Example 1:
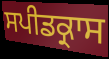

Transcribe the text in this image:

ਸਪੀਡਕ੍ਰਾਸ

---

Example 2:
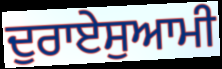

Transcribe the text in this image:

ਦੁਰਾਏਸੁਆਮੀ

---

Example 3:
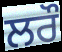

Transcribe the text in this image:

ਲਰੌ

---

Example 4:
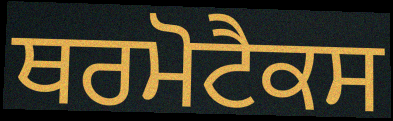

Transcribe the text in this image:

ਥਰਮੋਟੈਕਸ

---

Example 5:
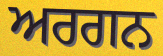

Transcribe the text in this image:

ਅਰਗਨ